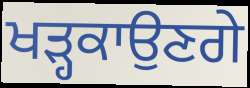
ਖੜ੍ਹਕਾਉਣਗੇ